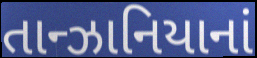
તાન્ઝાનિયાનાં